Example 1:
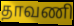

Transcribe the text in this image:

தாவணி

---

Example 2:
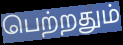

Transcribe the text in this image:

பெற்றதும்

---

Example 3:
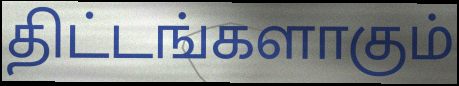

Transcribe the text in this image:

திட்டங்களாகும்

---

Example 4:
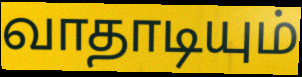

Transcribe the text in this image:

வாதாடியும்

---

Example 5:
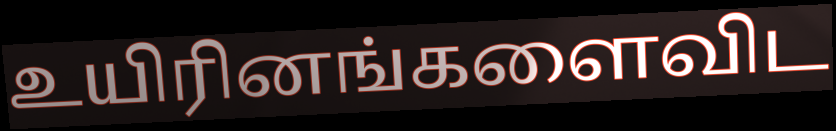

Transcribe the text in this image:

உயிரினங்களைவிட